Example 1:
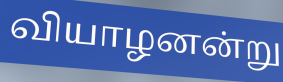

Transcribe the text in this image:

வியாழனன்று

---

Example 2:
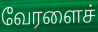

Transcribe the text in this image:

வேரளைச்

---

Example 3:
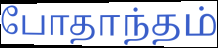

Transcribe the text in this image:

போதாந்தம்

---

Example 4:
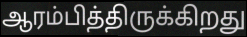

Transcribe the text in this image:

ஆரம்பித்திருக்கிறது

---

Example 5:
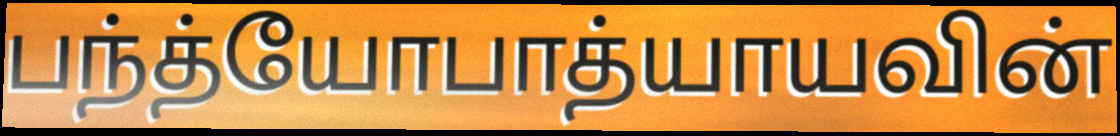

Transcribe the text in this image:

பந்த்யோபாத்யாயவின்